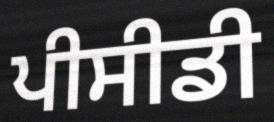
ਪੀਸੀਡੀ